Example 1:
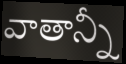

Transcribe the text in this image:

వాతాన్నీ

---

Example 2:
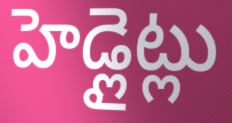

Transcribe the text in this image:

హెడ్లైట్లు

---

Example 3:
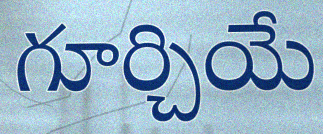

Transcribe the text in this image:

గూర్చియే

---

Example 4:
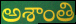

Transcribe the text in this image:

అశాంతి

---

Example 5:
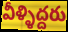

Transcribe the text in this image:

వీళ్ళిద్దరు